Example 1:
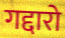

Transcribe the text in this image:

गद्दारो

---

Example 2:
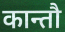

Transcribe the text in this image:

कान्तौ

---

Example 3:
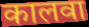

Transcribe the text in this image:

कालवा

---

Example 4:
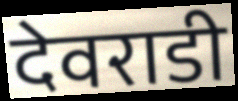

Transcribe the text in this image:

देवराडी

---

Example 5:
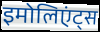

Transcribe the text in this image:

इमोलिएंट्स